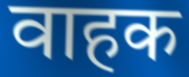
वाहक